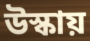
উস্কায়